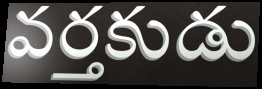
వర్తకుడు